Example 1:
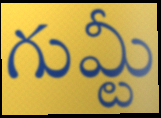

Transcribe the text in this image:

గుమ్టీ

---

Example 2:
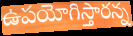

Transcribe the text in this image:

ఉపయోగిస్తారన్న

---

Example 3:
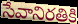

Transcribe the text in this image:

సేవానిరతికి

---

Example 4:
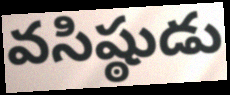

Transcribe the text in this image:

వసిష్ఠుడు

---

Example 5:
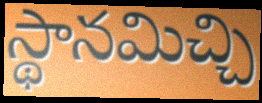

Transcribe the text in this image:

స్థానమిచ్చి